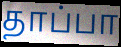
தாப்பா